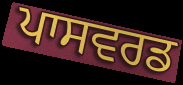
ਪਾਸਵਰਡ